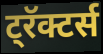
ट्रॅक्टर्स